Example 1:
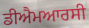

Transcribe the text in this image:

ਡੀਐਮਆਰਸੀ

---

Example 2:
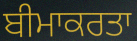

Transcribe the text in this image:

ਬੀਮਾਕਰਤਾ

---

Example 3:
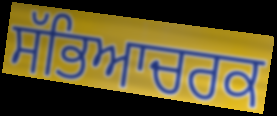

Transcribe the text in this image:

ਸੱਭਿਆਚਰਕ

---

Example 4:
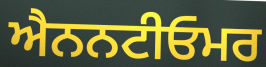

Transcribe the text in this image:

ਐਨਨਟੀਓਮਰ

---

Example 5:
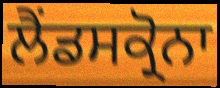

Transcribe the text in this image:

ਲੈਂਡਸਕ੍ਰੋਨਾ